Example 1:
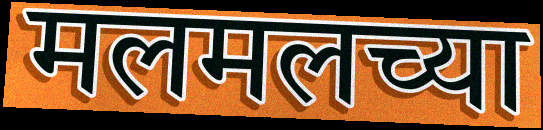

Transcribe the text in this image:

मलमलच्या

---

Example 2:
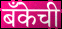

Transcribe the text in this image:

बँकेची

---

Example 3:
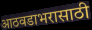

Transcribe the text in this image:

आठवडाभरासाठी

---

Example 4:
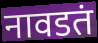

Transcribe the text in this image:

नावडतं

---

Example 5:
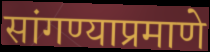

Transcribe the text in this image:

सांगण्याप्रमाणे